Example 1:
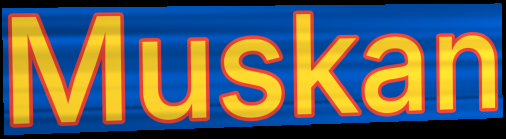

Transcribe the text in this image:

Muskan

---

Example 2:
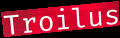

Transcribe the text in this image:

Troilus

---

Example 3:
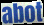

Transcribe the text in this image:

abot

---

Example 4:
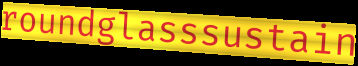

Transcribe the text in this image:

roundglasssustain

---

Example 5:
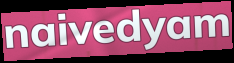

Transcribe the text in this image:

naivedyam